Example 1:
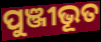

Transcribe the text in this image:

ପୁଞ୍ଜୀଭୂତ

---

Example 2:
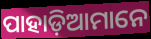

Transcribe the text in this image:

ପାହାଡ଼ିଆମାନେ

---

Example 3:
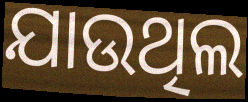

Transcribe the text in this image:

ଯାଉଥିଲ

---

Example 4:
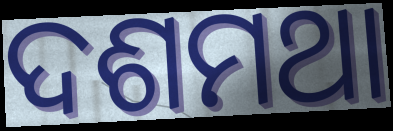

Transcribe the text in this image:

ଦଶମଥା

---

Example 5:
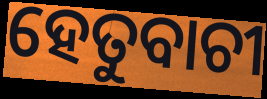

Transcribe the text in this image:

ହେତୁବାଚୀ